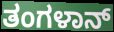
ತಂಗಳಾನ್